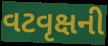
વટવૃક્ષની